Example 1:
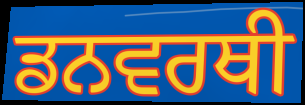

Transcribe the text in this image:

ਡਨਵਰਥੀ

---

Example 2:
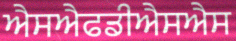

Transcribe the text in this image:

ਐਸਐਫਡੀਐਸਐਸ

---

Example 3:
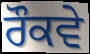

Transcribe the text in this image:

ਰੌਕਵੇ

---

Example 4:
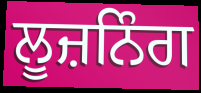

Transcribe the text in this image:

ਲੂਜ਼ਨਿੰਗ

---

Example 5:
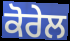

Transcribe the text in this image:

ਕੋਰੇਲ